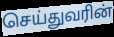
செய்துவரின்